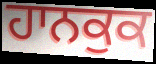
ਹਾਨਕੁਕ